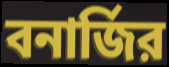
বনার্জির